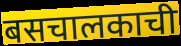
बसचालकाची